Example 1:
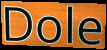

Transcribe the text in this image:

Dole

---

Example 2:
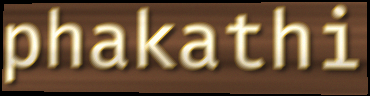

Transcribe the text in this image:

phakathi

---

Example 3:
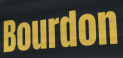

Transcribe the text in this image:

Bourdon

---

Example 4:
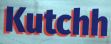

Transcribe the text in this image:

Kutchh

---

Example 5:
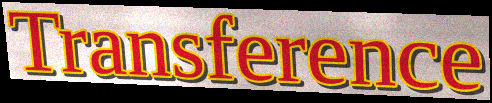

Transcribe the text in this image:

Transference